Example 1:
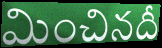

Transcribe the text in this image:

మించినదీ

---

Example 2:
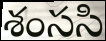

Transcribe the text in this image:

శంససి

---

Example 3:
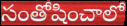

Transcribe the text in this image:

సంతోషించాలో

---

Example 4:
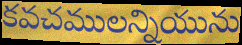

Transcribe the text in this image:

కవచములన్నియును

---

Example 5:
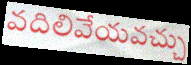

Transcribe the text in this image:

వదిలివేయవచ్చు